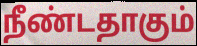
நீண்டதாகும்